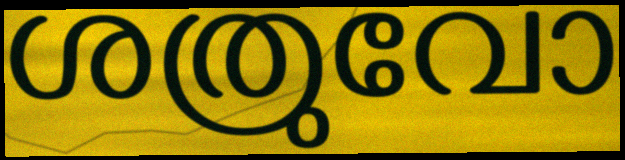
ശത്രുവോ